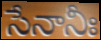
సేనానీః